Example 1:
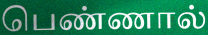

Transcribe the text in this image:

பெண்ணால்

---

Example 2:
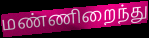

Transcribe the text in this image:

மண்ணிறைந்து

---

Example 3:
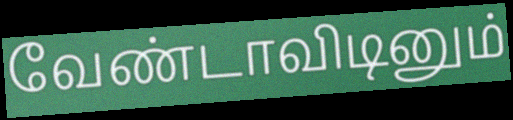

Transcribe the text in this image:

வேண்டாவிடினும்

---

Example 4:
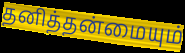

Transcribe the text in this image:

தனித்தன்மையும்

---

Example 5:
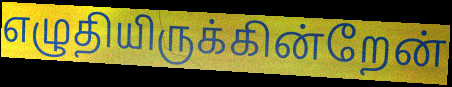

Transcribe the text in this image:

எழுதியிருக்கின்றேன்